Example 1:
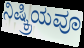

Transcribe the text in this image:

ನಿಷ್ಕ್ರಿಯವೂ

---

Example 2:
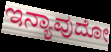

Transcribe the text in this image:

ಇನ್ಯಾವುದೋ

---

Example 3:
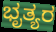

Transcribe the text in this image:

ಭೃತ್ಯರ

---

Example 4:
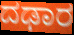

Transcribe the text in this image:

ದಢಾರ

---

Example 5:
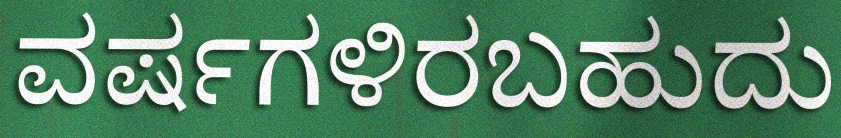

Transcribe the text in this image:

ವರ್ಷಗಳಿರಬಹುದು